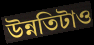
উন্নতিটাও